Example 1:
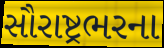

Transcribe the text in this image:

સૌરાષ્ટ્રભરના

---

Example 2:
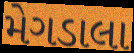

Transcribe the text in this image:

મેગડાલા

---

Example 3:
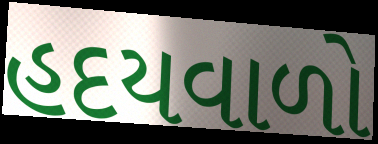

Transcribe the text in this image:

હદયવાળો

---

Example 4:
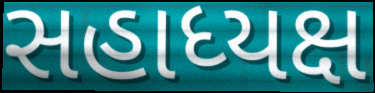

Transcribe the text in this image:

સહાધ્યક્ષ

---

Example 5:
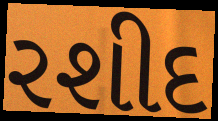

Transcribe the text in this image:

રશીદ